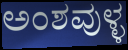
ಅಂಶವುಳ್ಳ